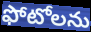
ఫోటోలను